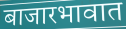
बाजारभावात